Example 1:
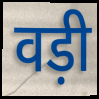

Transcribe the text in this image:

वड़ी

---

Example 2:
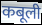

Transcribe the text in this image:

कबूली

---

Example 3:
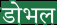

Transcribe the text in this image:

डोभल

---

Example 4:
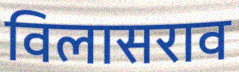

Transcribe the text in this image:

विलासराव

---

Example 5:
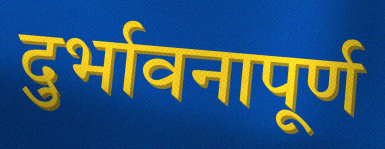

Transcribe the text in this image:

दुर्भावनापूर्ण